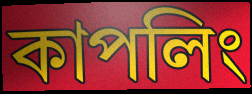
কাপলিং